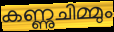
കണ്ണുചിമ്മും